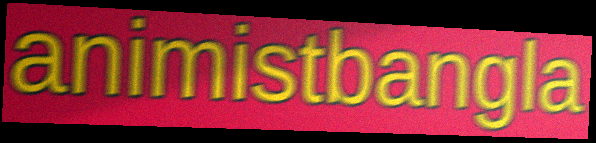
animistbangla